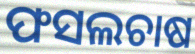
ଫସଲଚାଷ